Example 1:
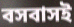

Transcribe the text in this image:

বসবাসই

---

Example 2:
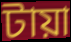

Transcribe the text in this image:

টায়া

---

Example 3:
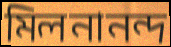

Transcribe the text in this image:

মিলনানন্দ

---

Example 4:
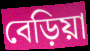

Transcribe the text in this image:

বেড়িয়া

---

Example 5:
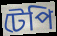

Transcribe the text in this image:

টেপি